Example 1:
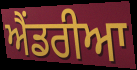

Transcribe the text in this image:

ਐਂਡਰੀਆ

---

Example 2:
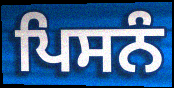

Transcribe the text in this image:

ਪਿਸਨੰ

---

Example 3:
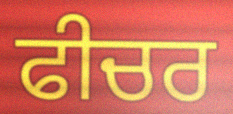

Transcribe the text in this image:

ਫੀਚਰ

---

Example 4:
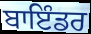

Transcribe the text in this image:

ਬਾਇੰਡਰ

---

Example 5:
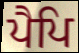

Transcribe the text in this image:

ਪੈਪਿ